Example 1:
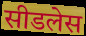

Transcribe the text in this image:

सीडलेस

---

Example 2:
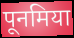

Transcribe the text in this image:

पूनमिया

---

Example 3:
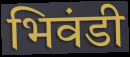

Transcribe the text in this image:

भिवंडी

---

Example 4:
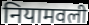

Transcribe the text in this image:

नियामवली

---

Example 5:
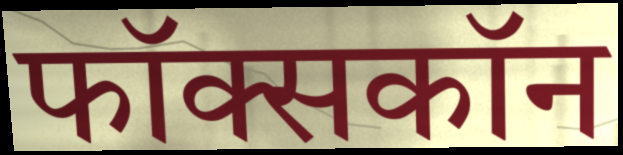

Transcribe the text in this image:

फॉक्सकॉन